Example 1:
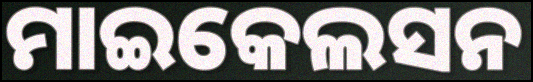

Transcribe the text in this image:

ମାଇକେଲସନ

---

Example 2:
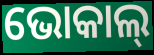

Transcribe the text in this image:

ଭୋକାଲ୍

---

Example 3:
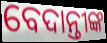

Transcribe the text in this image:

ବେଦାନ୍ତୀଙ୍କ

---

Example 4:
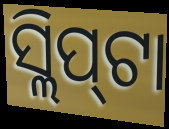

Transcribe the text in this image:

ସ୍ଲିପ୍‌ଟା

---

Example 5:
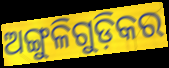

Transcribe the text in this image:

ଅଙ୍ଗୁଳିଗୁଡ଼ିକର